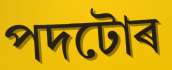
পদটোৰ